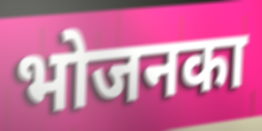
भोजनका